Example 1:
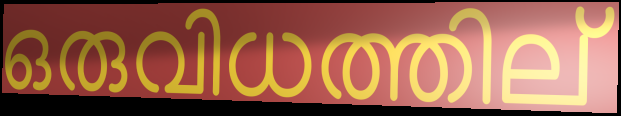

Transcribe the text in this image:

ഒരുവിധത്തില്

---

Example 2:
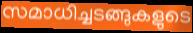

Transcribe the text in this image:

സമാധിച്ചടങ്ങുകളുടെ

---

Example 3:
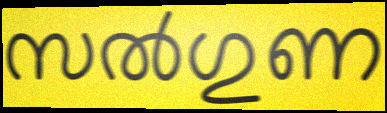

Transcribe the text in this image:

സൽഗുണ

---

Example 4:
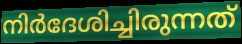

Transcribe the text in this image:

നിർദേശിച്ചിരുന്നത്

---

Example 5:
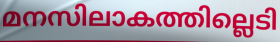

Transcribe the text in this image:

മനസിലാകത്തില്ലെടി